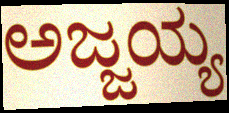
ಅಜ್ಜಯ್ಯ